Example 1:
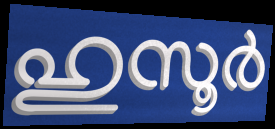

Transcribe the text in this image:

ഹുസൂർ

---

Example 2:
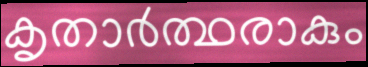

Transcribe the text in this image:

കൃതാർത്ഥരാകും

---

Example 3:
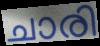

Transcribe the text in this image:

ചാരി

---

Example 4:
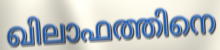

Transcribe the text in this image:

ഖിലാഫത്തിനെ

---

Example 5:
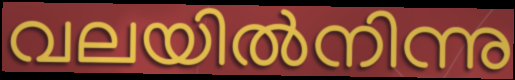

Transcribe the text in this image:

വലയിൽനിന്നു